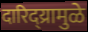
दारिद्य्रामुळे